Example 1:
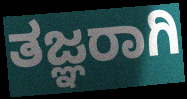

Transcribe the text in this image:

ತಜ್ಞರಾಗಿ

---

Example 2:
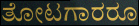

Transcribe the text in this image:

ತೋಟಗಾರರೂ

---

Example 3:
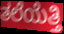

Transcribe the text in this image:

ತಲೆಯೆತ್ತಿ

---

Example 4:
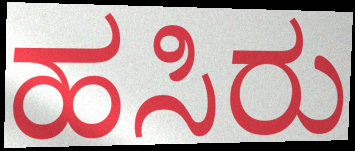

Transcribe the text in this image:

ಹಸಿರು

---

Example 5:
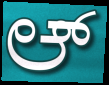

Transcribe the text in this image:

ಆ್